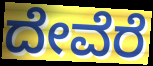
ದೇವೆರೆ